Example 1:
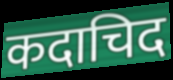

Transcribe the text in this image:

कदाचिद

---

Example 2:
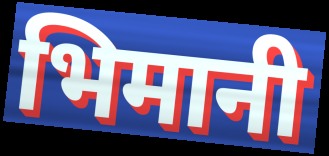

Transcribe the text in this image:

भिमानी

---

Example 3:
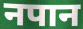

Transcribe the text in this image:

नपान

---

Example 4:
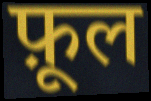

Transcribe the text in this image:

फ़ूल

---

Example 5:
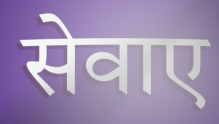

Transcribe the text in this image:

सेवाए